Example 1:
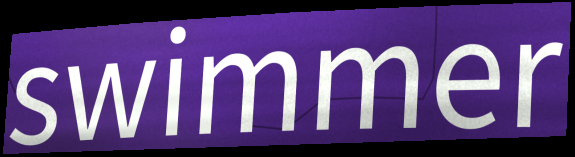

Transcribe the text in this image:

swimmer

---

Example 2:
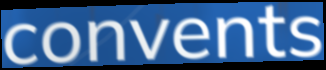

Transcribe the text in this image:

convents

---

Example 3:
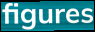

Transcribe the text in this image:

figures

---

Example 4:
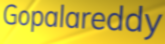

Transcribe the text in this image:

Gopalareddy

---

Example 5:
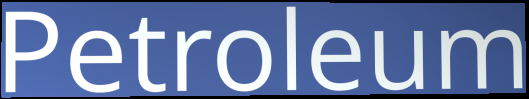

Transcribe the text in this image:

Petroleum